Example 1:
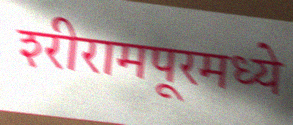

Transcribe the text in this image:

श्रीरामपूरमध्ये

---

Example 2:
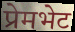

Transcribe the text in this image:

प्रेमभेट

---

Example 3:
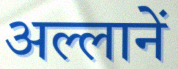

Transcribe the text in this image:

अल्लानें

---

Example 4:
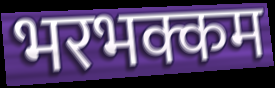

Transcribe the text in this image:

भरभक्कम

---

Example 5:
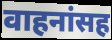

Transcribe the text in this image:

वाहनांसह